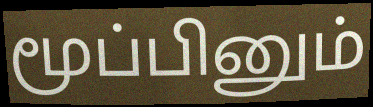
மூப்பினும்